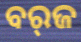
ବର୍‌ଜ